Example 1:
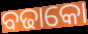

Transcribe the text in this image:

ବଢାକୋ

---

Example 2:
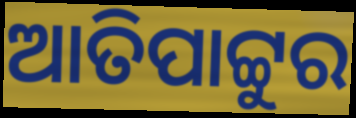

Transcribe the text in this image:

ଆତିପାଟ୍ଟୁର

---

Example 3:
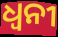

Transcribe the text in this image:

ଧ୍ୱନୀ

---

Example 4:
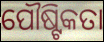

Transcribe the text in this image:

ପୌଷ୍ଟିକତା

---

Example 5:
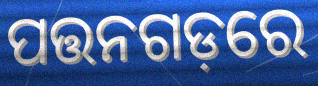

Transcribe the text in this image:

ପତ୍ତନଗଡ଼ରେ